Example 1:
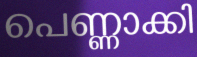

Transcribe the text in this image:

പെണ്ണാക്കി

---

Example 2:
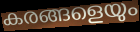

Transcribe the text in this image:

കരങ്ങളെയും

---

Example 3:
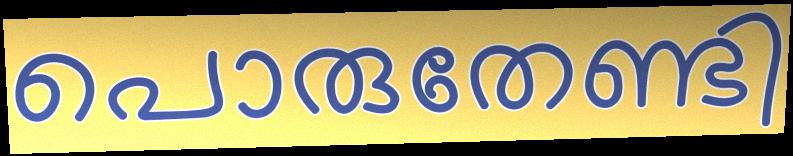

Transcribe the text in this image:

പൊരുതേണ്ടി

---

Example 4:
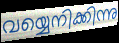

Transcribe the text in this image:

വയ്യെനിക്കിന്നു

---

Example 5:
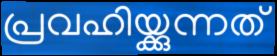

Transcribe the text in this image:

പ്രവഹിയ്ക്കുന്നത്